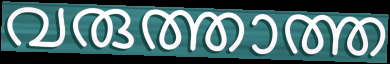
വരുത്താത്ത